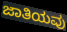
ಜಾತಿಯವು